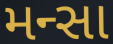
મન્સા